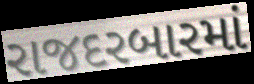
રાજદરબારમાં